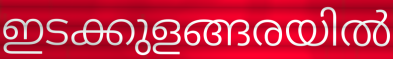
ഇടക്കുളങ്ങരയിൽ